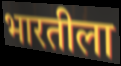
भारतीला